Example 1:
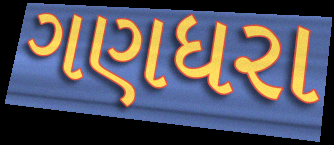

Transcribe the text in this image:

ગણધરા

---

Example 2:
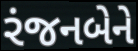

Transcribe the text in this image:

રંજનબેને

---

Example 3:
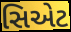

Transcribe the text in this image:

સિએટ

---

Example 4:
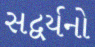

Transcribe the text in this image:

સદ્વર્યનો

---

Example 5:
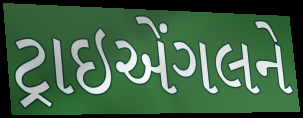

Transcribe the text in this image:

ટ્રાઇએંગલને